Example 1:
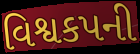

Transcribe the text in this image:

વિશ્વકપની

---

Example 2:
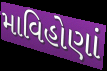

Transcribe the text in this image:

માવિહોણાં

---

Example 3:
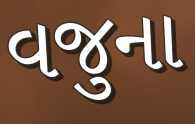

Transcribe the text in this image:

વજુના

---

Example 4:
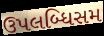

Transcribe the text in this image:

ઉપલબ્ધિસમ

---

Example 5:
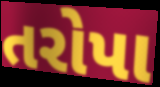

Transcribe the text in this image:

તરોપા